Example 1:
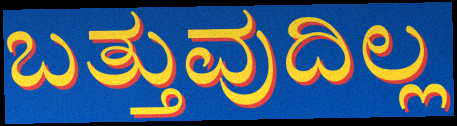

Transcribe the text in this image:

ಬತ್ತುವುದಿಲ್ಲ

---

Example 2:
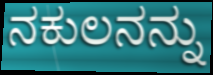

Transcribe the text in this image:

ನಕುಲನನ್ನು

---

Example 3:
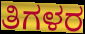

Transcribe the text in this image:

ತಿಗಳರ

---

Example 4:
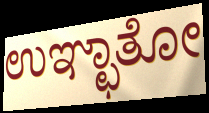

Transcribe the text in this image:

ಉಞ್ಛಾತೋ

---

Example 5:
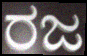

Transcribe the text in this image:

ರಜ